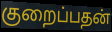
குறைப்பதன்